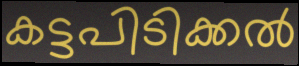
കട്ടപിടിക്കൽ